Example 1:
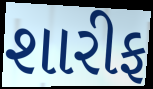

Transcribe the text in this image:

શારીફ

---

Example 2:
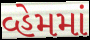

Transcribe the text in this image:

વ્હેમમાં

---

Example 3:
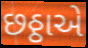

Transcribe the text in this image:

છઠ્ઠાએ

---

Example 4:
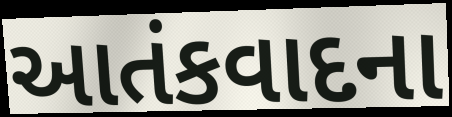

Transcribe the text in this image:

આતંકવાદના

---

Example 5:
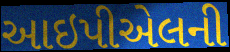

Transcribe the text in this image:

આઇપીએલની